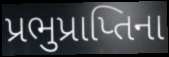
પ્રભુપ્રાપ્તિના